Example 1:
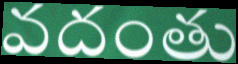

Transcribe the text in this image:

వదంతు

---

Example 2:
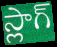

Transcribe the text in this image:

స్లాగ్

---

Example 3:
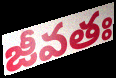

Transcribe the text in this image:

జీవతః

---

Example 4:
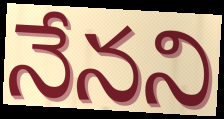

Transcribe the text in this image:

నేనని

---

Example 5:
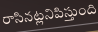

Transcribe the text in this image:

రాసినట్లనిపిస్తుంది